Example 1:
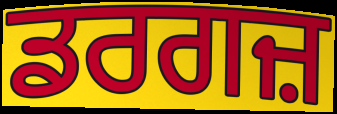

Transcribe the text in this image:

ਡਰਗਜ਼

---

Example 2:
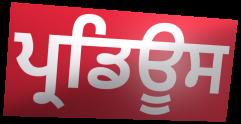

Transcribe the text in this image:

ਪ੍ਰਡਿਊਸ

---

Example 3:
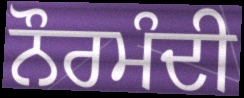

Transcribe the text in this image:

ਨੌਰਮੰਦੀ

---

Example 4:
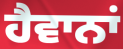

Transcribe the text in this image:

ਹੈਵਾਨਾਂ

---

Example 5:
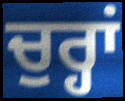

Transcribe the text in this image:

ਚੁਰ੍ਹਾਂ